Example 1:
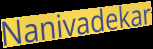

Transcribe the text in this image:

Nanivadekar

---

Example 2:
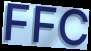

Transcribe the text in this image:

FFC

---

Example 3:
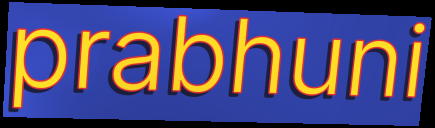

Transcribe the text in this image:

prabhuni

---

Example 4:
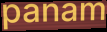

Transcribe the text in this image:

panam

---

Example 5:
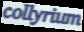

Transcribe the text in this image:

collyrium